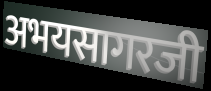
अभयसागरजी